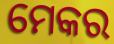
ମେକର